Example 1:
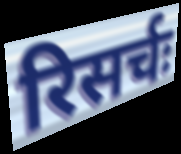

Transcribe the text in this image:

रिसर्चः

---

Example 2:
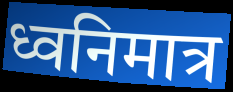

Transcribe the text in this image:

ध्वनिमात्र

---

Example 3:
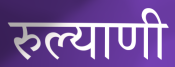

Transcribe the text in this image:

रुल्याणी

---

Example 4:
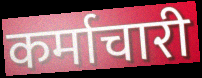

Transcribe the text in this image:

कर्माचारी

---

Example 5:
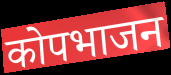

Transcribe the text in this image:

कोपभाजन